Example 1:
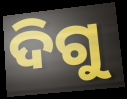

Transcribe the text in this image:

ଦିଗୁ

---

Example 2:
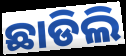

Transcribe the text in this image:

ଛାଡିଲି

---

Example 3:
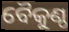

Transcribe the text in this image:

ବୈକୁଣ୍ଠ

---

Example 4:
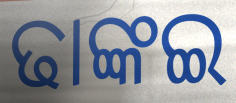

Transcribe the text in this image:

ଢାଙ୍କଇ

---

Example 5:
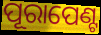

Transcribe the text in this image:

ପୂରାପେଣ୍ଟ